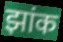
झांक